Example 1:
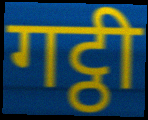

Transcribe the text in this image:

गट्ठी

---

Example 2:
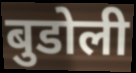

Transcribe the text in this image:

बुडोली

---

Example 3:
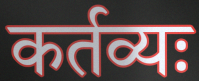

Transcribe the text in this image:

कर्तव्यः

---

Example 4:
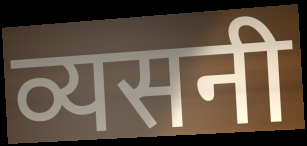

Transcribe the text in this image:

व्यसनी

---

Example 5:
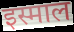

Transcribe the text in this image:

इस्माल